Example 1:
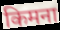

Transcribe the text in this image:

किमना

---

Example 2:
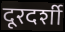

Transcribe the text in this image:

दूरदर्शी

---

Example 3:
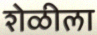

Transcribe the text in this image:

शेळीला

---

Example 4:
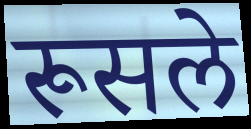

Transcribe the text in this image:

रूसले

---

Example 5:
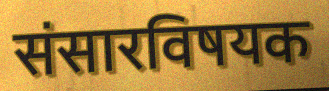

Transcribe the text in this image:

संसारविषयक